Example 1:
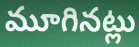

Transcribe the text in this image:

మూగినట్లు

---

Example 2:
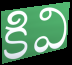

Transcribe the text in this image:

కివి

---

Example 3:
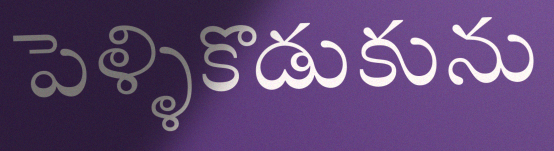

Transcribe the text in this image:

పెళ్ళికొడుకును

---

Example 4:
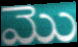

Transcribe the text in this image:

మొ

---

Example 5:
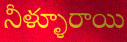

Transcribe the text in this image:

నీళ్ళూరాయి